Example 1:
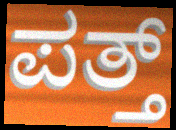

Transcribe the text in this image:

ಪತ್ತ್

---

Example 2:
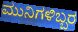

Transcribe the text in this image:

ಮುನಿಗಳಿಬ್ಬರ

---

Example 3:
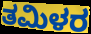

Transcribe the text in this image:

ತಮಿಳರ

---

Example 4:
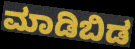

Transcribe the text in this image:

ಮಾಡಿಬಿಡ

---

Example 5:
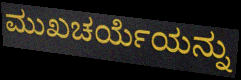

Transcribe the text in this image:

ಮುಖಚರ್ಯೆಯನ್ನು